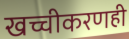
खच्चीकरणही